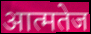
आत्मतेज